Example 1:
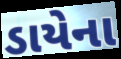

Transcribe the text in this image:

ડાયેના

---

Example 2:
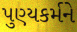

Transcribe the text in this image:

પુણ્યકર્મને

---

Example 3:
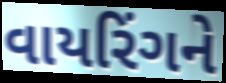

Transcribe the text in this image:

વાયરિંગને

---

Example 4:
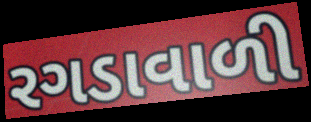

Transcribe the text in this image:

રગડાવાળી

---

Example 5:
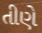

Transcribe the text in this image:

તીણે